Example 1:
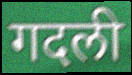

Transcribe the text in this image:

गदली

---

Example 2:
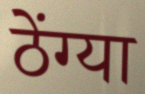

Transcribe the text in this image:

ठेंग्या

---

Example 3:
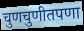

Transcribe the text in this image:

चुणचुणीतपणा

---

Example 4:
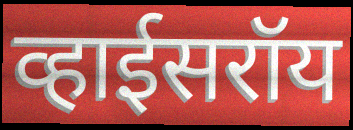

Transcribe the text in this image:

व्हाईसरॉय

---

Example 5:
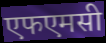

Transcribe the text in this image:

एफएमसी